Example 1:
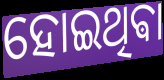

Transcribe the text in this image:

ହୋଇଥିଵା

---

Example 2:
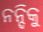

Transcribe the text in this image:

ନନ୍ଦିକୁ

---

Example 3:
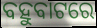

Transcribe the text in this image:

ବହୁବାଟରେ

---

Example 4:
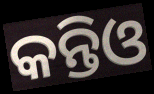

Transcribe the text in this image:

କନ୍ତିଓ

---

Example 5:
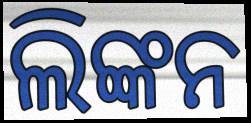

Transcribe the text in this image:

ଲିଙ୍କନ